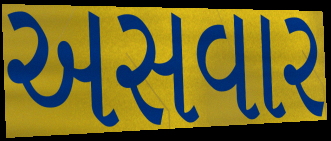
અસવાર